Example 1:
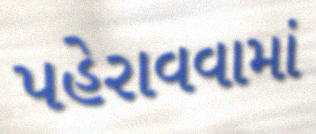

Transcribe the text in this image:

પહેરાવવામાં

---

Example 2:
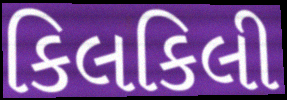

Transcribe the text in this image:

કિલકિલી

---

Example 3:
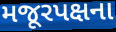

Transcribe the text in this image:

મજૂરપક્ષના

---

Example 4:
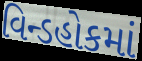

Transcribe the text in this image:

વિન્ડહોકમાં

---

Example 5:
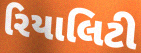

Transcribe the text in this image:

રિયાલિટી